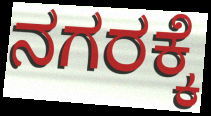
ನಗರಕ್ಕೆ